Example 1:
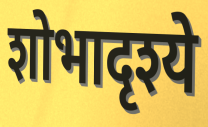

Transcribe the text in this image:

शोभादृश्ये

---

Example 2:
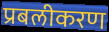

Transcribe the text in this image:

प्रबलीकरण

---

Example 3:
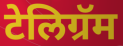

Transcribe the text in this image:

टेलिग्रॅम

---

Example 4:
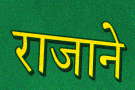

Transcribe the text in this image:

राजाने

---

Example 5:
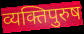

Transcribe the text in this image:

व्यक्तिपुरुष